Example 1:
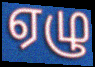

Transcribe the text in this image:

ஏழு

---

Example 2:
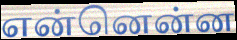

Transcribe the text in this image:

என்னென்ன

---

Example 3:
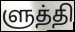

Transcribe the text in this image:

ளுத்தி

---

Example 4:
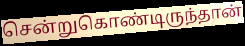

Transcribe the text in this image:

சென்றுகொண்டிருந்தான்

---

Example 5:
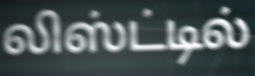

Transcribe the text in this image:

லிஸ்ட்டில்